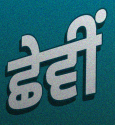
ਛੇਵੀਂ